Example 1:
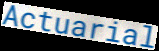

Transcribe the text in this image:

Actuarial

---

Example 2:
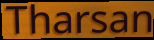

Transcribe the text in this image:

Tharsan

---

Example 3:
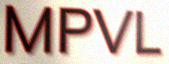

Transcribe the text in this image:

MPVL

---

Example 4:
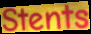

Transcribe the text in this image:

Stents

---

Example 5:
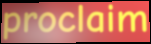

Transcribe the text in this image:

proclaim